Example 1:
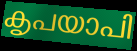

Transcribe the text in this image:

കൃപയാപി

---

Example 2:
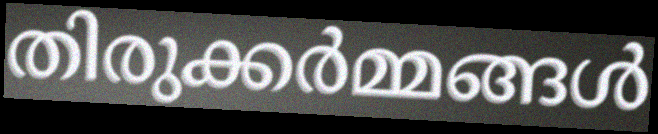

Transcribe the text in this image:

തിരുക്കർമ്മങ്ങൾ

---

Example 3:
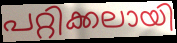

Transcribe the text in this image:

പറ്റിക്കലായി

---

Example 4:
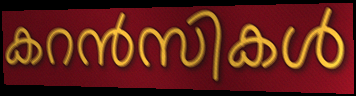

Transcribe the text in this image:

കറൻസികൾ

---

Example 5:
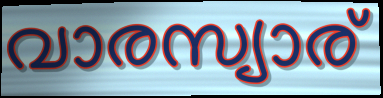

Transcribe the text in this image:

വാരസ്യാര്